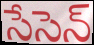
సేసెన్